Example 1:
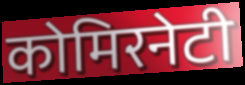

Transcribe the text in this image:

कोमिरनेटी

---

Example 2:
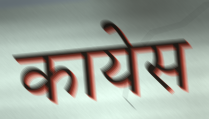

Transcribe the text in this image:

कायेस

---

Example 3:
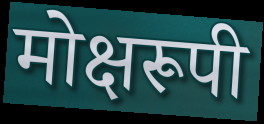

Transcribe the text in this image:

मोक्षरूपी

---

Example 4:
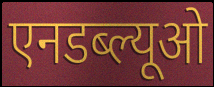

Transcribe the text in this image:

एनडब्ल्यूओ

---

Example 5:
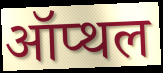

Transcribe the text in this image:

ऑप्थल